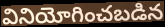
వినియోగించబడిన